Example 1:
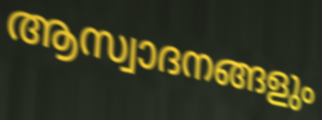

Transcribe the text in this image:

ആസ്വാദനങ്ങളും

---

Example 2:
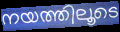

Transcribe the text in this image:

നയത്തിലൂടെ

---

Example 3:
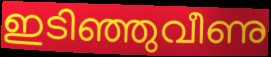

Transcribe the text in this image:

ഇടിഞ്ഞുവീണു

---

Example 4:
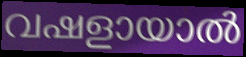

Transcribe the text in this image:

വഷളായാൽ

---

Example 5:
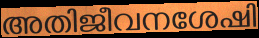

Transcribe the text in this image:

അതിജീവനശേഷി